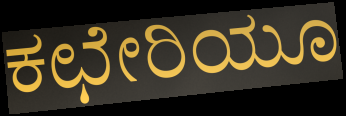
ಕಛೇರಿಯೂ